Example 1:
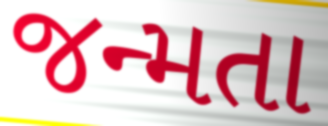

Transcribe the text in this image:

જન્મતા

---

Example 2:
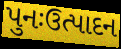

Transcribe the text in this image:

પુનઃઉત્પાદન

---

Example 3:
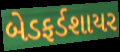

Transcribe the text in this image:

બેડફર્ડશાયર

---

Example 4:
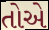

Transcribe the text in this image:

તોએ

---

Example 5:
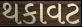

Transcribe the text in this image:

થકાવટ